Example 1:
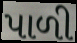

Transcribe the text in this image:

પાળી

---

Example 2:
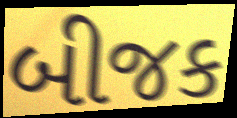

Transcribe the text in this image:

બીજક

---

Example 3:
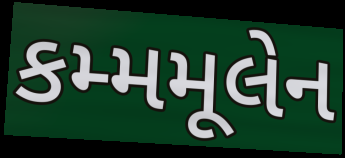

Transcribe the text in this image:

કમ્મમૂલેન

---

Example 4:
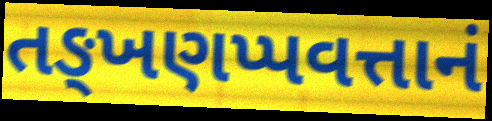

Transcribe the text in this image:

તઙ્ખણપ્પવત્તાનં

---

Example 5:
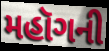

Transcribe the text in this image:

મહૉગની